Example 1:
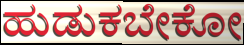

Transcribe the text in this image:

ಹುಡುಕಬೇಕೋ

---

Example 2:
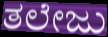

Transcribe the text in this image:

ತಲೇಜು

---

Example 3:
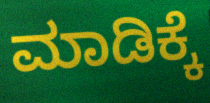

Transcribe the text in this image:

ಮಾಡಿಕ್ಕೆ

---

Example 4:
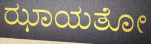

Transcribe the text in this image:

ಝಾಯತೋ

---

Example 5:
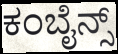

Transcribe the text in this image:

ಕಂಬೈನ್ಸ್